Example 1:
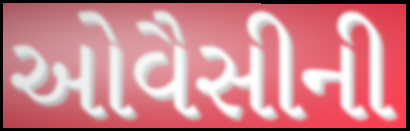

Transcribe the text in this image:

ઓવૈસીની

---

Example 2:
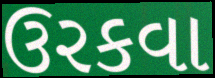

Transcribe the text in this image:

ઉરકવા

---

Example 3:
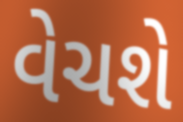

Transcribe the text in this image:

વેચશે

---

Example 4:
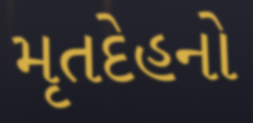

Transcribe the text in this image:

મૃતદેહનો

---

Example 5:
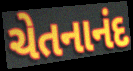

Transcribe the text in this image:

ચેતનાનંદ